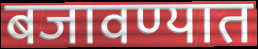
बजावण्यात